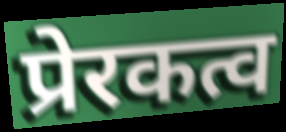
प्रेरकत्व